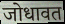
जोधावत